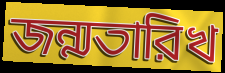
জন্মতারিখ